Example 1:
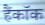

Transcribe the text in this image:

हैंकॉक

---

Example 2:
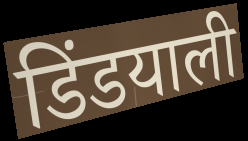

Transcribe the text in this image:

डिंडयाली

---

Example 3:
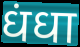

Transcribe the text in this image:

धंधा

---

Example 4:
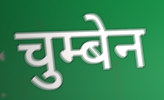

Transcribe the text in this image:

चुम्बेन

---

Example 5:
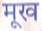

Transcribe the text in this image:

मूख